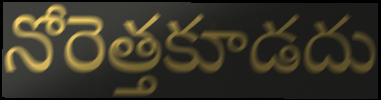
నోరెత్తకూడదు